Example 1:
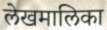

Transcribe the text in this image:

लेखमालिका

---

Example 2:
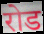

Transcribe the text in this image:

रोड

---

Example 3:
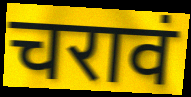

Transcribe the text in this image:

चरावं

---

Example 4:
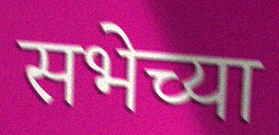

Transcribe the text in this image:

सभेच्या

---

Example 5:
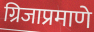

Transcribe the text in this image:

ग्रिजाप्रमाणे